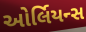
ઓર્લિયન્સ